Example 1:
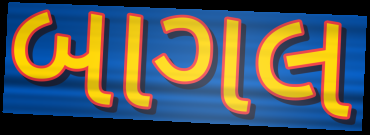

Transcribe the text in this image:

બાગલ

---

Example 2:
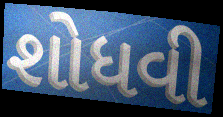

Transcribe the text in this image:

શોધવી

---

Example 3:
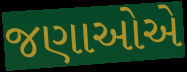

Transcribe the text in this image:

જણાઓએ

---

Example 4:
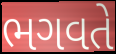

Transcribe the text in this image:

ભગવતે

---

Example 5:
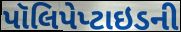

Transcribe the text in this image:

પૉલિપેપ્ટાઇડની